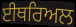
ਈਥਰਿਅਲ